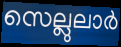
സെല്ലുലാർ